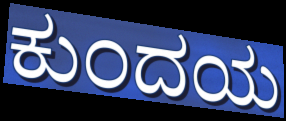
ಕುಂದಯ